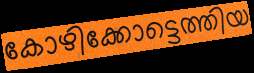
കോഴിക്കോട്ടെത്തിയ